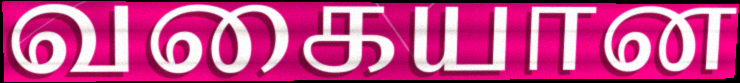
வகையான